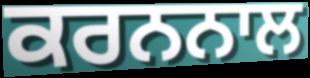
ਕਰਨਨਾਲ